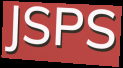
JSPS